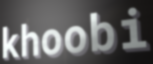
khoobi